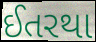
ઈતરથા